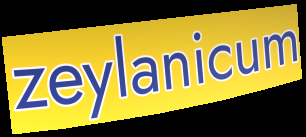
zeylanicum